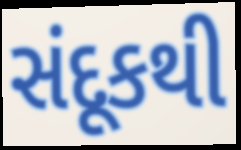
સંદૂકથી